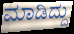
ಮಾಡಿದ್ದು